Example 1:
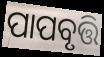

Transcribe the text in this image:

ପାପବୃତ୍ତି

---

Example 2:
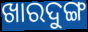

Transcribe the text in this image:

ଖାରଦୁଙ୍ଗ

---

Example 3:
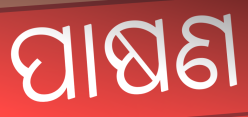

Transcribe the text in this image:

ପାଷଣ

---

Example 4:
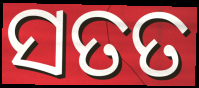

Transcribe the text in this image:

ସତତ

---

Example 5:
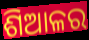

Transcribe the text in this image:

ଶିଆଳର